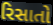
રિસાતો